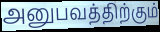
அனுபவத்திற்கும்